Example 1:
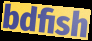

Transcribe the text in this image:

bdfish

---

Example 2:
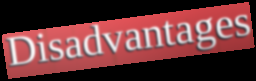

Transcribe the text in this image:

Disadvantages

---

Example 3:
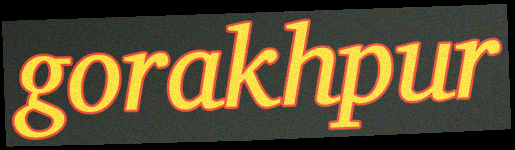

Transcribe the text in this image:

gorakhpur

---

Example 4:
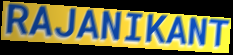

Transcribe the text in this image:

RAJANIKANT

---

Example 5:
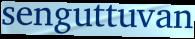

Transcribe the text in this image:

senguttuvan